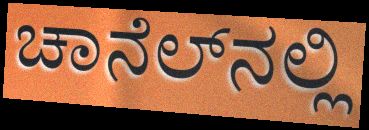
ಚಾನೆಲ್‌ನಲ್ಲಿ